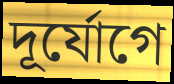
দূর্যোগে